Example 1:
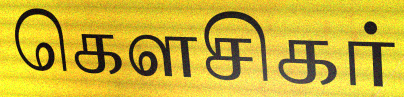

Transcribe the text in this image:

கௌசிகர்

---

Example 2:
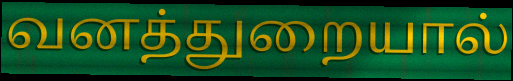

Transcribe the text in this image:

வனத்துறையால்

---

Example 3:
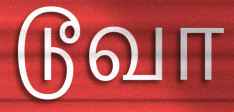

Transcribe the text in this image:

டூவா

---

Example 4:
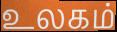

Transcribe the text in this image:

உலகம்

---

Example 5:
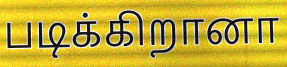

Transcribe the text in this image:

படிக்கிறானா